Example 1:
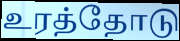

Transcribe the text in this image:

உரத்தோடு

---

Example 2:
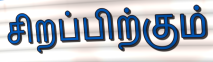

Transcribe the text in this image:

சிறப்பிற்கும்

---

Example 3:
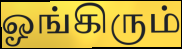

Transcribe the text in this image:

ஓங்கிரும்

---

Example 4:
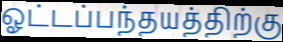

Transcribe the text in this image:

ஓட்டப்பந்தயத்திற்கு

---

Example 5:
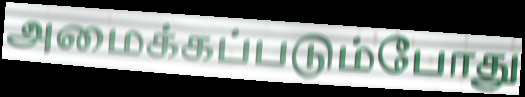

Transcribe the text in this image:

அமைக்கப்படும்போது